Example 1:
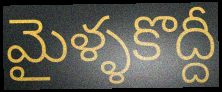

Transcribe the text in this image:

మైళ్ళకొద్దీ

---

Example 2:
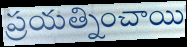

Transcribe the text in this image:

ప్రయత్నించాయి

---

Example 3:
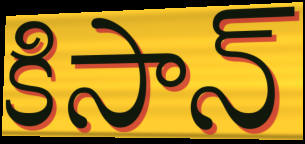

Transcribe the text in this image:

కిసాన్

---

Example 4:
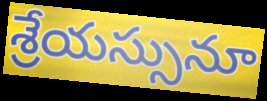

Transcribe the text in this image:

శ్రేయస్సునూ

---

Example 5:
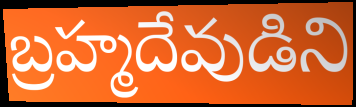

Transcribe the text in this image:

బ్రహ్మదేవుడిని